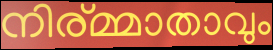
നിര്മ്മാതാവും